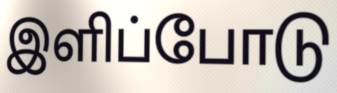
இளிப்போடு